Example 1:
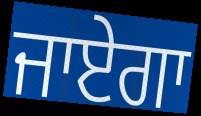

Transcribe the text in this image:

ਜਾਏਗਾ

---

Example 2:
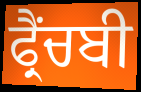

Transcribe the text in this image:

ਫ੍ਰੈਂਚਬੀ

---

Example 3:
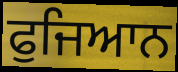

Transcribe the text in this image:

ਫੁਜਿਆਨ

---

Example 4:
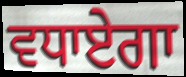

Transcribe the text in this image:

ਵਧਾਏਗਾ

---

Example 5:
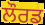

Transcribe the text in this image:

ਲੌਰਡ